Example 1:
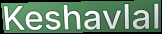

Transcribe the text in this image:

Keshavlal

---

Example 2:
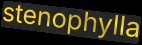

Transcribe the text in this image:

stenophylla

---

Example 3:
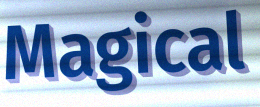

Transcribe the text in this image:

Magical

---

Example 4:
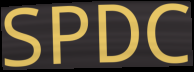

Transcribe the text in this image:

SPDC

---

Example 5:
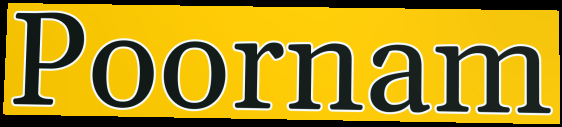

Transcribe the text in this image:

Poornam